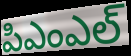
పిఎంఎల్